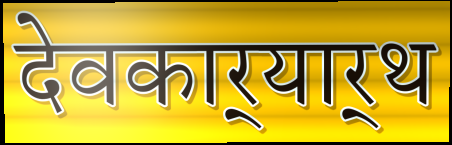
देवकार्यार्थ